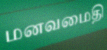
மனவமைதி